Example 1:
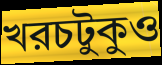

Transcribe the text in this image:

খরচটুকুও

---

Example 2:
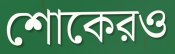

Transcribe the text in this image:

শোকেরও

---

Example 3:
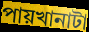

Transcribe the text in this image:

পায়খানাটা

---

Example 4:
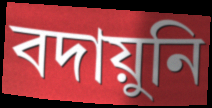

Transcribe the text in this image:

বদায়ুনি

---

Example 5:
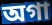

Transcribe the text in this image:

অগা